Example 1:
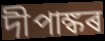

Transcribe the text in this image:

দীপাঙ্কৰ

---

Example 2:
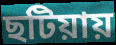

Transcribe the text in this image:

ছটিয়ায়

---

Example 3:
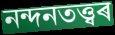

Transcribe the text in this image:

নন্দনতত্ত্বৰ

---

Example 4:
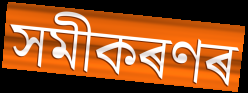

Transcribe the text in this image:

সমীকৰণৰ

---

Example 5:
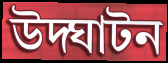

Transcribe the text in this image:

উদ্ঘাটন